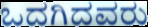
ಒದಗಿದವರು